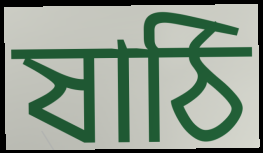
ষাঠি